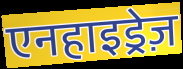
एनहाइड्रेज़